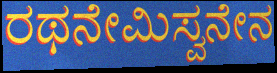
ರಥನೇಮಿಸ್ವನೇನ